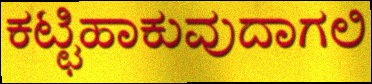
ಕಟ್ಟಿಹಾಕುವುದಾಗಲಿ